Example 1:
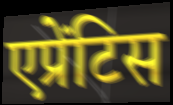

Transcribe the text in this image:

एप्रेंटिस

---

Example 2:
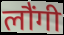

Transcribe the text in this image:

लौंगी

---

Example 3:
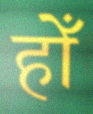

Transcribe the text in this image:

होँ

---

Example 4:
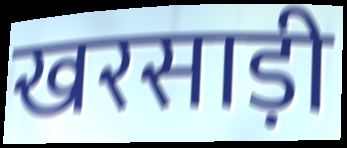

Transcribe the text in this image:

खरसाड़ी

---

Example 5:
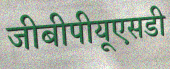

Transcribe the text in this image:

जीबीपीयूएसडी